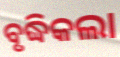
ବୃଦ୍ଧିକଲା